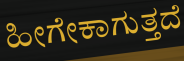
ಹೀಗೇಕಾಗುತ್ತದೆ